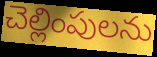
చెల్లింపులను